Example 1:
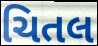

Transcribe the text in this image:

ચિતલ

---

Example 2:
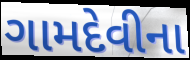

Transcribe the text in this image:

ગામદેવીના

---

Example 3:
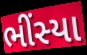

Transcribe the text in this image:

ભીંસ્યા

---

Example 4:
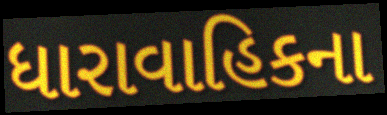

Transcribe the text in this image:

ધારાવાહિકના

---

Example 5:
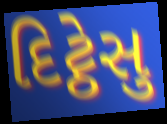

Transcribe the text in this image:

દિટ્ઠેસુ